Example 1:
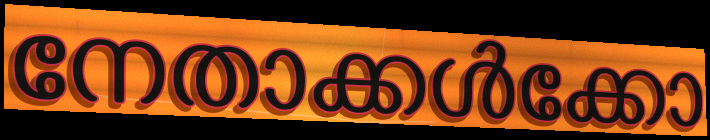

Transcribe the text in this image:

നേതാക്കൾക്കോ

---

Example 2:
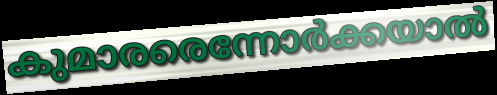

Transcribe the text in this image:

കുമാരരെന്നോർക്കയാൽ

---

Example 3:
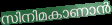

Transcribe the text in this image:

സിനിമകാണാൻ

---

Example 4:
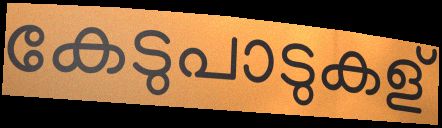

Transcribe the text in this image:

കേടുപാടുകള്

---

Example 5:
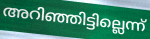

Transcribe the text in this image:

അറിഞ്ഞിട്ടില്ലെന്ന്